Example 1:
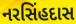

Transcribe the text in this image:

નરસિંહદાસ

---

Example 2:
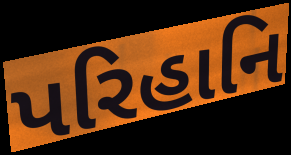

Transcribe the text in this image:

પરિહાનિ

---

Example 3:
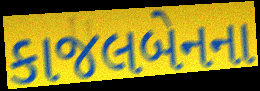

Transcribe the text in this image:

કાજલબેનના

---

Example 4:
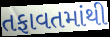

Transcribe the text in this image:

તફાવતમાંથી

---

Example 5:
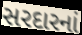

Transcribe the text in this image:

સરદારનાં